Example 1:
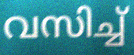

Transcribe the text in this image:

വസിച്ച്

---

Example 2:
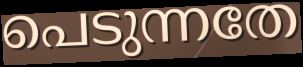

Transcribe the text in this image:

പെടുന്നതേ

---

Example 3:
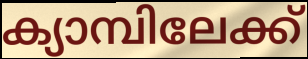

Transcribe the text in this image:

ക്യാമ്പിലേക്ക്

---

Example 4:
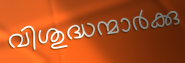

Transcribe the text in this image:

വിശുദ്ധന്മാർക്കു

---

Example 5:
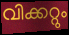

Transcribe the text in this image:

വിക്കറ്റും